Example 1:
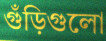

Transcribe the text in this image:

গুঁড়িগুলো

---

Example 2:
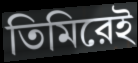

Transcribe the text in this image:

তিমিরেই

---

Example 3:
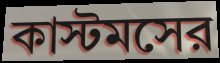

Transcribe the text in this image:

কাস্টমসের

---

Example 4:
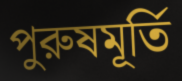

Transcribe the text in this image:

পুরুষমূর্তি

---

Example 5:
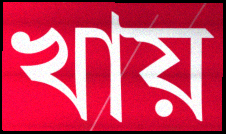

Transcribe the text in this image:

খায়